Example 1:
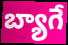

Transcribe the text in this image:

బ్యాగే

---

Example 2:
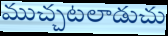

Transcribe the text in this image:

ముచ్చటలాడుచు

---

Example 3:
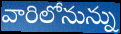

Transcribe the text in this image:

వారిలోనున్ను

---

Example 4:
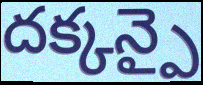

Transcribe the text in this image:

దక్కన్పై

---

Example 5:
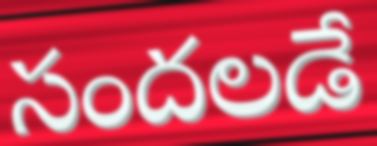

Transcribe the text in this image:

సందలడే